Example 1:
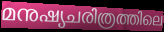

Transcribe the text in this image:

മനുഷ്യചരിത്രത്തിലെ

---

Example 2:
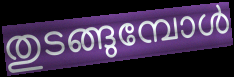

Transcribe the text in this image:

തുടങ്ങുമ്പോൾ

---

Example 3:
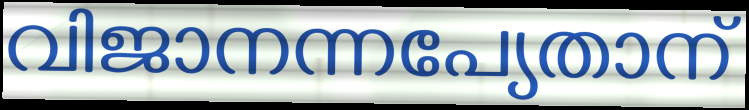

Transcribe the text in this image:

വിജാനന്നപ്യേതാന്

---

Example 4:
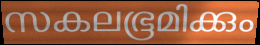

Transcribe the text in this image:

സകലഭൂമിക്കും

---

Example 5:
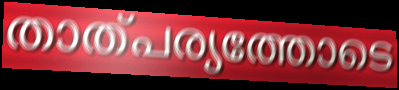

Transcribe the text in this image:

താത്പര്യത്തോടെ